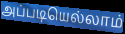
அப்படியெல்லாம்